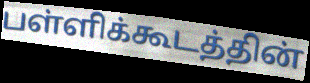
பள்ளிக்கூடத்தின்